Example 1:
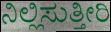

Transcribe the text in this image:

ನಿಲ್ಲಿಸುತ್ತೀರಿ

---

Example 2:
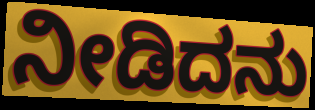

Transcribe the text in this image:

ನೀಡಿದನು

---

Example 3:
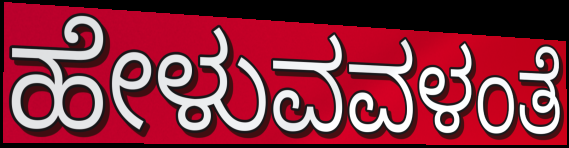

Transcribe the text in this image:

ಹೇಳುವವಳಂತೆ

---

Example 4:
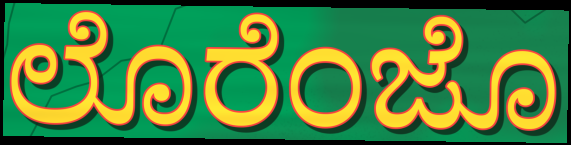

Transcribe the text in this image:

ಲೊರೆಂಜೊ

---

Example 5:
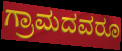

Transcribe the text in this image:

ಗ್ರಾಮದವರೂ